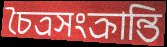
চৈত্রসংক্রান্তি